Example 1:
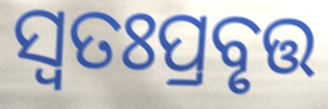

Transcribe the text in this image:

ସ୍ବତଃପ୍ରବୃତ୍ତ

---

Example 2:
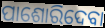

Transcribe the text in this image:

ପାଶୋରିଦେବା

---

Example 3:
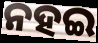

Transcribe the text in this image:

ନହଇ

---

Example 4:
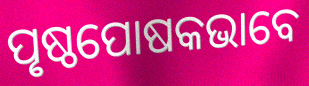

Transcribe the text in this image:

ପୃଷ୍ଠପୋଷକଭାବେ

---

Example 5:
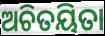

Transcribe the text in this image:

ଅଚିତୟିତା